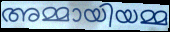
അമ്മായിയമ്മ